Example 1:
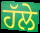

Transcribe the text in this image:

ਹੱਲੇ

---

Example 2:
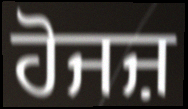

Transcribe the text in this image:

ਹੋਜਜ਼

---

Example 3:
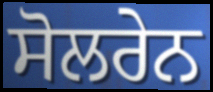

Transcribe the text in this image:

ਸੋਲਰੇਨ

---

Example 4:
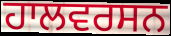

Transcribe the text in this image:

ਹਾਲਵਰਸਨ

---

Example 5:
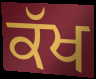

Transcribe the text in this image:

ਕੱਖ